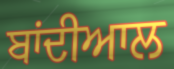
ਬਾਂਦੀਆਲ